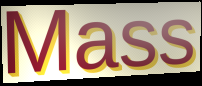
Mass